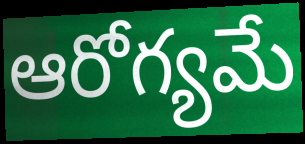
ఆరోగ్యమే